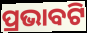
ପ୍ରଭାବଟି